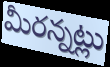
మీరన్నట్లు